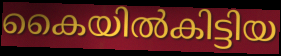
കൈയിൽകിട്ടിയ